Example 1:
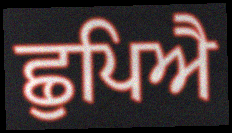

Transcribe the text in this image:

ਛੁਪਿਐ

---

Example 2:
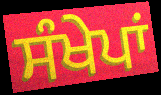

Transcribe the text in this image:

ਸੰਖੇਪਾਂ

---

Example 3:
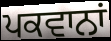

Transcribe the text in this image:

ਪਕਵਾਨਾਂ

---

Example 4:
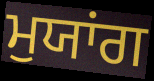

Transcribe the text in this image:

ਮੁਯਾਂਗ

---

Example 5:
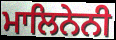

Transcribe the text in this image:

ਮਾਲਿਨੇਨੀ